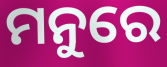
ମନୁରେ